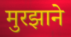
मुरझाने